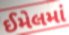
ઈમેલમાં